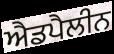
ਐਡਪੈਲੀਨ